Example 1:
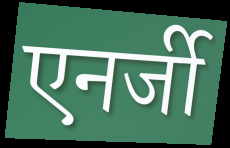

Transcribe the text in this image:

एनर्जी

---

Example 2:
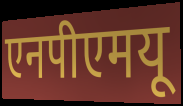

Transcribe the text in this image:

एनपीएमयू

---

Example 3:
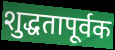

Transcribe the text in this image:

शुद्धतापूर्वक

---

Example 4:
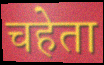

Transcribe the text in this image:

चहेता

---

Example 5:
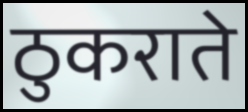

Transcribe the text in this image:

ठुकराते